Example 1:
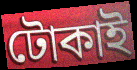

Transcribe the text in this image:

টোকাই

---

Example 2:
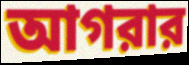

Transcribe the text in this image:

আগরার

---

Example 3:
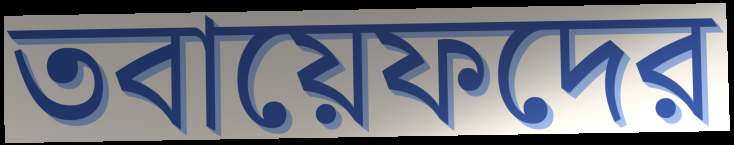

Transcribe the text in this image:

তবায়েফদের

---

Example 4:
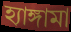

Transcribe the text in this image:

হ্যাঙ্গামা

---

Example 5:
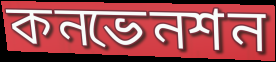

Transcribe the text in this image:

কনভেনশন